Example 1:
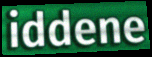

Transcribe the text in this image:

iddene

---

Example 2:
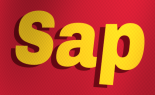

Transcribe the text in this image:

Sap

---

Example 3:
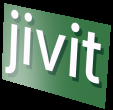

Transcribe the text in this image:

jivit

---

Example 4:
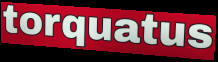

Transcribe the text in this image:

torquatus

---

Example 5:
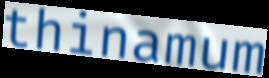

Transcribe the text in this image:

thinamum